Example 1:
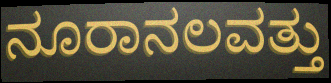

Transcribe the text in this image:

ನೂರಾನಲವತ್ತು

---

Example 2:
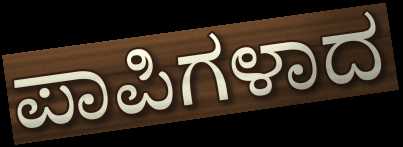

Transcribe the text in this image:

ಪಾಪಿಗಳಾದ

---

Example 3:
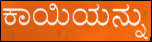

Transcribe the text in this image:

ಕಾಯಿಯನ್ನು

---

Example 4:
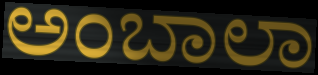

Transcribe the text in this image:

ಅಂಬಾಲಾ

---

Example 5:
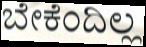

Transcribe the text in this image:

ಬೇಕೆಂದಿಲ್ಲ